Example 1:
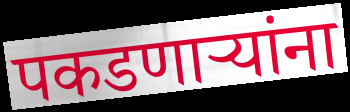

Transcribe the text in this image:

पकडणाऱ्यांना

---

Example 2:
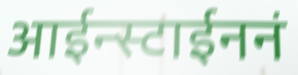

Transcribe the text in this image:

आईन्स्टाईननं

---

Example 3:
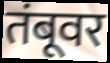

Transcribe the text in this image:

तंबूवर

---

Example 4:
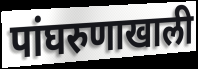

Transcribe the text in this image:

पांघरुणाखाली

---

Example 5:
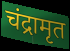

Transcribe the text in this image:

चंद्रामृत